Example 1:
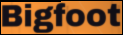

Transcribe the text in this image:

Bigfoot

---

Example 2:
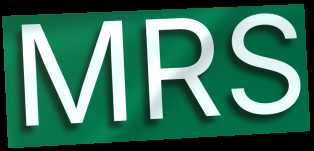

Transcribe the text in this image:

MRS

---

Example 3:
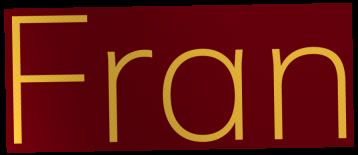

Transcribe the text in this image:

Fran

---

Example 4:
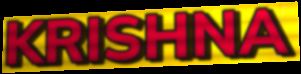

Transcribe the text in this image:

KRISHNA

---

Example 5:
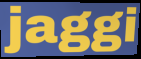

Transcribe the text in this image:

jaggi